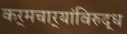
कर्मचार्यांविरुद्ध